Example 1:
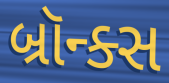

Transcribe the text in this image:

બ્રૉન્ક્સ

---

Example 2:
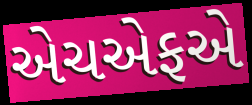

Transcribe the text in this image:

એચએફએ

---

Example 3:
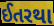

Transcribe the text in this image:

ઈતરથા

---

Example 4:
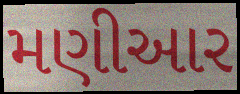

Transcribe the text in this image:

મણીઆર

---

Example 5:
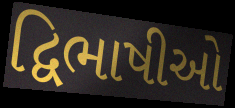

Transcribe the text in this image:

દ્વિભાષીઓ